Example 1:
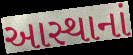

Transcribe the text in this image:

આસ્થાનાં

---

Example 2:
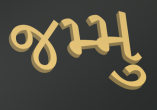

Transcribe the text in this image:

જમ્મુ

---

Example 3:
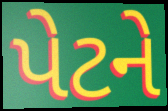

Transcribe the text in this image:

પેટને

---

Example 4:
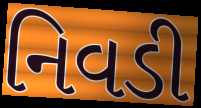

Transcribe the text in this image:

નિવડી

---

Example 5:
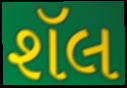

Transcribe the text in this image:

શૅલ